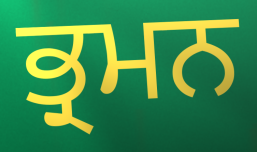
ਭ੍ਰਮਨ